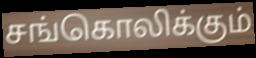
சங்கொலிக்கும்